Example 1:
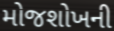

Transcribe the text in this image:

મોજશોખની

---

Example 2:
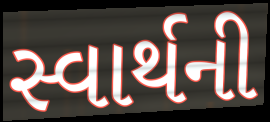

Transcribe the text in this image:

સ્વાર્થની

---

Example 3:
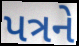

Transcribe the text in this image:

પત્રને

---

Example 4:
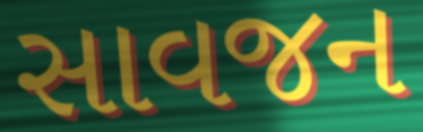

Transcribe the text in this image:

સાવજન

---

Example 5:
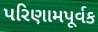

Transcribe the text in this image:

પરિણામપૂર્વક